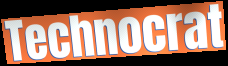
Technocrat